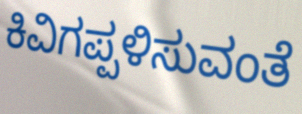
ಕಿವಿಗಪ್ಪಳಿಸುವಂತೆ